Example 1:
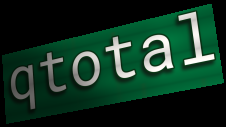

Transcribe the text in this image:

qtotal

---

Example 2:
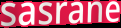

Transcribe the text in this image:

sasrane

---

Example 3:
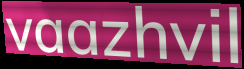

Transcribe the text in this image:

vaazhvil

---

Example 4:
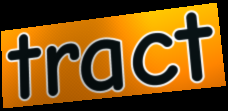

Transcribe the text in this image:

tract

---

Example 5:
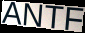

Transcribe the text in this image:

ANTF